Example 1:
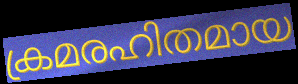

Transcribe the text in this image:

ക്രമരഹിതമായ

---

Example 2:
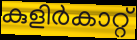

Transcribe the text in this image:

കുളിർകാറ്റ്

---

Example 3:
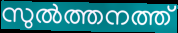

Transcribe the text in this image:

സുൽത്തനത്ത്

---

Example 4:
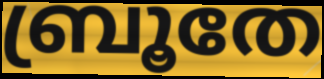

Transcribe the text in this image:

ബ്രൂതേ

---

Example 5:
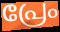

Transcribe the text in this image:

പ്രേം